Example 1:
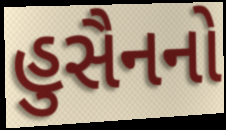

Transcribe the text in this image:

હુસૈનનો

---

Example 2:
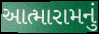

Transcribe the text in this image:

આત્મારામનું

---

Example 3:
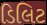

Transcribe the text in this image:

ડિલિટ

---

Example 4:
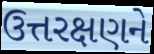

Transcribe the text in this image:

ઉત્તરક્ષણને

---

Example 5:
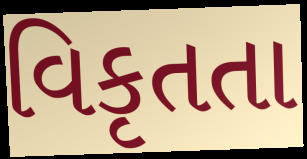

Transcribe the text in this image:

વિકૃતતા